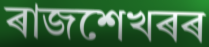
ৰাজশেখৰৰ